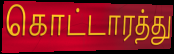
கொட்டாரத்து